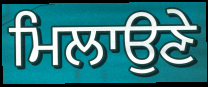
ਮਿਲਾਉਣੇ